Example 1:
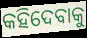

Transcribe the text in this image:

କହିଦେବାକୁ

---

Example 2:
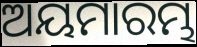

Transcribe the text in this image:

ଅୟମାରମ୍ଭ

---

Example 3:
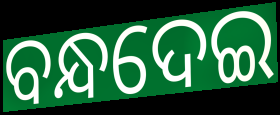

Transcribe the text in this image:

ବନ୍ଧଦେଇ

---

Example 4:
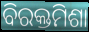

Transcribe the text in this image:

ବିରକ୍ତମିଶା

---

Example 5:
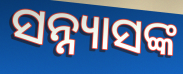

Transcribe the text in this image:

ସନ୍ନ୍ୟାସଙ୍କ